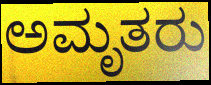
ಅಮೃತರು